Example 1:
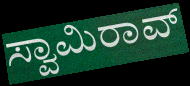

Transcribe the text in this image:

ಸ್ವಾಮಿರಾವ್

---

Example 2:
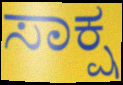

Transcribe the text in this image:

ಸಾಕ್ಷ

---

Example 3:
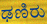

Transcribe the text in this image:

ಢಣಿರು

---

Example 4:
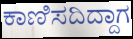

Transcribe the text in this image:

ಕಾಣಿಸದಿದ್ದಾಗ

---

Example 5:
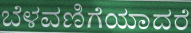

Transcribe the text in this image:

ಬೆಳವಣಿಗೆಯಾದರೆ